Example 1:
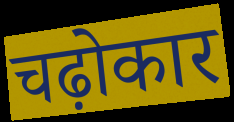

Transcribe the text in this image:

चढ़ोकार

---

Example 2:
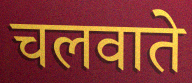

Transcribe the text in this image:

चलवाते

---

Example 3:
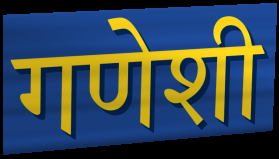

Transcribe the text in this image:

गणेशी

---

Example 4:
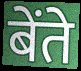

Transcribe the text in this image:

बेंते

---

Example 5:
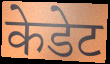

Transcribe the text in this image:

केडेट